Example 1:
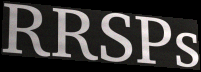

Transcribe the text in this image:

RRSPs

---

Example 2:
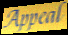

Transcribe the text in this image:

Appeal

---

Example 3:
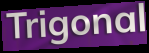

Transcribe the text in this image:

Trigonal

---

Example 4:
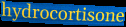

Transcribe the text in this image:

hydrocortisone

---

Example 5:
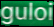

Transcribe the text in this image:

guloi